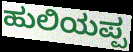
ಹುಲಿಯಪ್ಪ